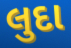
લુદા